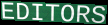
EDITORS